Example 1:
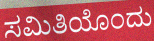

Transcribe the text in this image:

ಸಮಿತಿಯೊಂದು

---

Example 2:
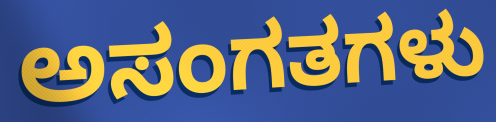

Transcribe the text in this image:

ಅಸಂಗತಗಳು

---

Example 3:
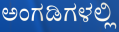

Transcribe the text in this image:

ಅಂಗಡಿಗಳಲ್ಲಿ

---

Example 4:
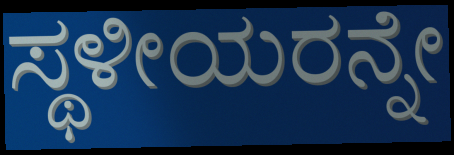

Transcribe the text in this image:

ಸ್ಥಳೀಯರನ್ನೇ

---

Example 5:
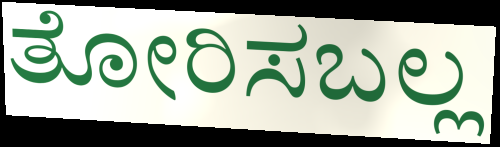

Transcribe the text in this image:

ತೋರಿಸಬಲ್ಲ